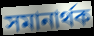
সমানার্থক